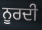
ਨੂਰਦੀ